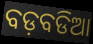
ବଡ଼ବଡିଆ